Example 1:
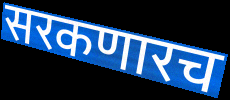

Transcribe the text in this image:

सरकणारच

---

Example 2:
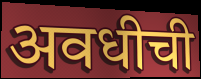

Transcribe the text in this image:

अवधीची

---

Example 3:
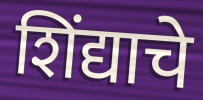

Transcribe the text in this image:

शिंद्याचे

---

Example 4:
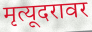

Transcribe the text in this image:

मृत्यूदरावर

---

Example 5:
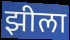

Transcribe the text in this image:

झीला